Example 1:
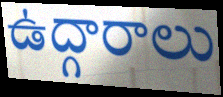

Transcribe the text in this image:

ఉద్గారాలు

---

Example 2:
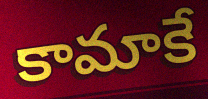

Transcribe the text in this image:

కామాకే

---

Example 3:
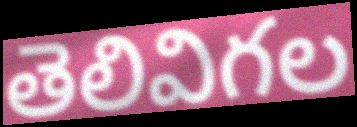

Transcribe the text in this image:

తెలివిగల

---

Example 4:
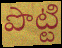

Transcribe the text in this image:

పొట్టి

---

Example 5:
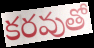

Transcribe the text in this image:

కరవుతో